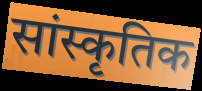
सांस्‍कृतिक